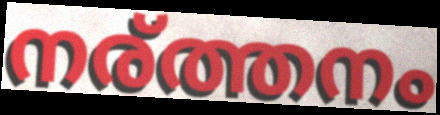
നര്ത്തനം